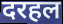
दरहल